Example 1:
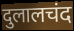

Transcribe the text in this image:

दुलालचंद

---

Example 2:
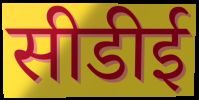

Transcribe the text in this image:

सीडीई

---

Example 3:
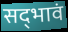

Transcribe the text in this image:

सद्भावं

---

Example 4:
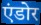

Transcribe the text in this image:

एंडोर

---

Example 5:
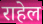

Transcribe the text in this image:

राहेल